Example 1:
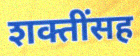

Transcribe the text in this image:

शक्तींसह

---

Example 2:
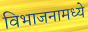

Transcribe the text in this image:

विभाजनामध्ये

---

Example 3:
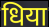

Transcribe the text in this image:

धिया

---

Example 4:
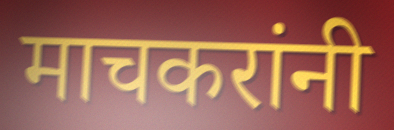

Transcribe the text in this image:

माचकरांनी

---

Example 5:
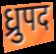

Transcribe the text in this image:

ध्रुपद